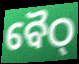
ବୈଠ୍